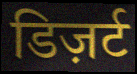
डिज़र्ट